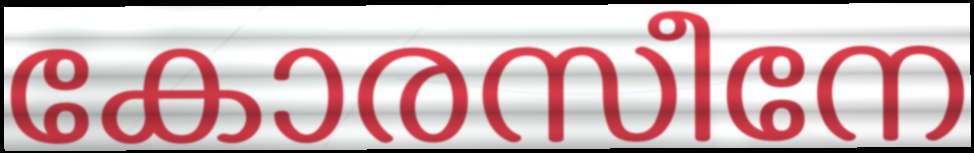
കോരസീനേ